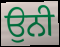
ਉਨੀ